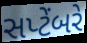
સપ્ટેંબરે